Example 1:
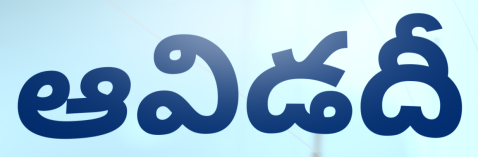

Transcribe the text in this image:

ఆవిడదీ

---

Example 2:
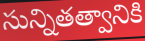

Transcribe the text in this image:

సున్నితత్వానికి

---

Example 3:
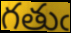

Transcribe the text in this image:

గతుఁ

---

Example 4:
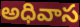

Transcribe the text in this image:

అధివాస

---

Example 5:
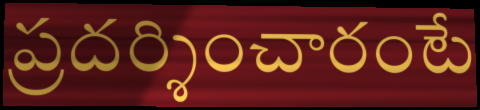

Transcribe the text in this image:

ప్రదర్శించారంటే